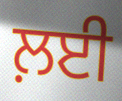
ਲ਼ਈ